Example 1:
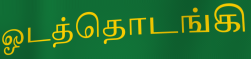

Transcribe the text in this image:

ஓடத்தொடங்கி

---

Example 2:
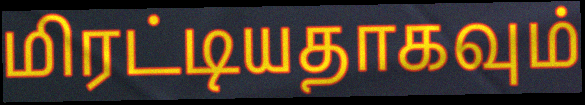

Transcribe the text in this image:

மிரட்டியதாகவும்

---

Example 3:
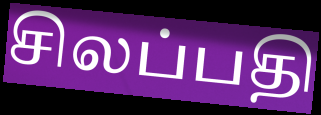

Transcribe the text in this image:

சிலப்பதி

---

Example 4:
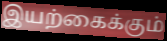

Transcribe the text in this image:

இயற்கைக்கும்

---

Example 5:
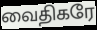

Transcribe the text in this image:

வைதிகரே